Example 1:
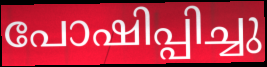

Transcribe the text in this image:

പോഷിപ്പിച്ചു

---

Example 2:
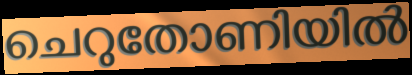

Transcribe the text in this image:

ചെറുതോണിയിൽ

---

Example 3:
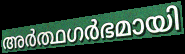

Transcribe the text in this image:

അർത്ഥഗർഭമായി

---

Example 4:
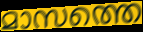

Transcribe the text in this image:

മാസത്തെ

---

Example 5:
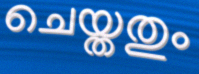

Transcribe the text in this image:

ചെയ്തതും